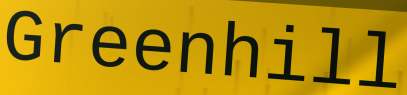
Greenhill